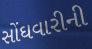
સોંઘવારીની